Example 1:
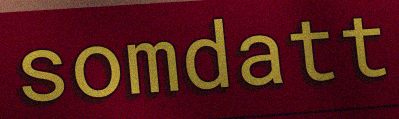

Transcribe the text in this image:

somdatt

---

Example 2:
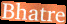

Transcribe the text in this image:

Bhatre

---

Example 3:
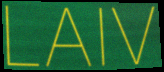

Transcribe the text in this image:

LAIV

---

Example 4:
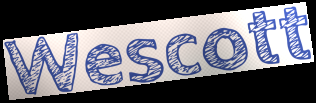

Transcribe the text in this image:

Wescott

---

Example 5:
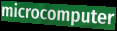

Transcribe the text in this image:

microcomputer